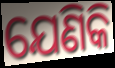
ଯେଣିକି